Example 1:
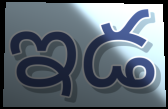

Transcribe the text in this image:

ఇడ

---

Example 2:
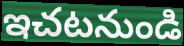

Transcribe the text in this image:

ఇచటనుండి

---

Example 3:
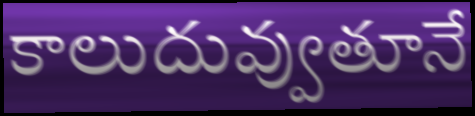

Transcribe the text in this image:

కాలుదువ్వుతూనే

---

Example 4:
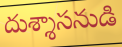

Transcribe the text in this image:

దుశ్శాసనుడి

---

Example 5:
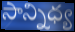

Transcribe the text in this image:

సాన్నిధ్య